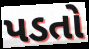
પડતો